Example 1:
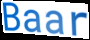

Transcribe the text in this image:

Baar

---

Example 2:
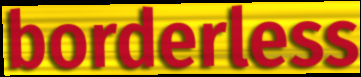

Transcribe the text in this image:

borderless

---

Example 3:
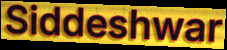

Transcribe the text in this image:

Siddeshwar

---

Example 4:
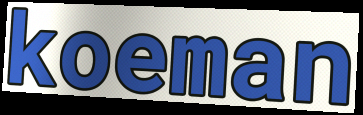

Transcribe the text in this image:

koeman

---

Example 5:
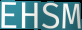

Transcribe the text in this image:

EHSM